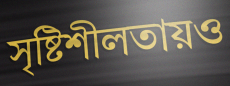
সৃষ্টিশীলতায়ও